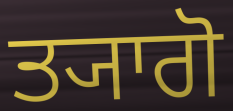
ਤ੍ਯਾਗੋ